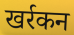
खर्रकन